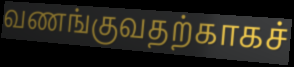
வணங்குவதற்காகச்